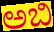
ಅಬಿ